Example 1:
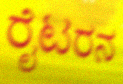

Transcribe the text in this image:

ರೈಟರನ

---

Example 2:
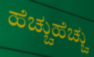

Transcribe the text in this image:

ಹೆಚ್ಚುಹೆಚ್ಚು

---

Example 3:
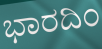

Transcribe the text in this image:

ಭಾರದಿಂ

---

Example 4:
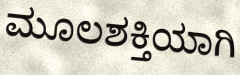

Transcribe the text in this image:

ಮೂಲಶಕ್ತಿಯಾಗಿ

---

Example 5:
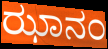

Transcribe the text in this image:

ಝಾನಂ